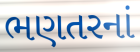
ભણતરનાં